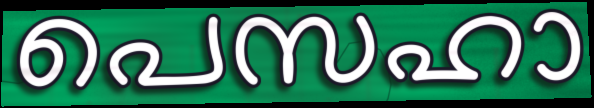
പെസഹാ